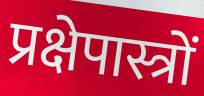
प्रक्षेपास्त्रों